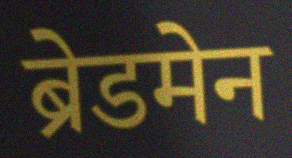
ब्रेडमेन